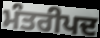
ਮੰਤਰੀਪਦ